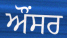
ਔਂਸਰ